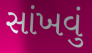
સાંખવું